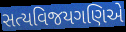
સત્યવિજયગણિએ